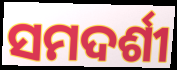
ସମଦର୍ଶୀ